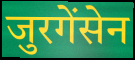
जुरगेंसेन